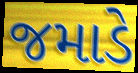
જમાડે